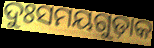
ଦୁଃସମୟଗୁଡ଼ାକ